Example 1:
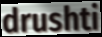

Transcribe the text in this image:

drushti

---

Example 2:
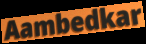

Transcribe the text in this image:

Aambedkar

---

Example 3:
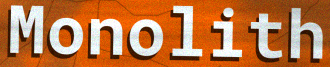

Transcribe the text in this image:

Monolith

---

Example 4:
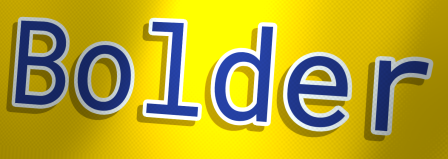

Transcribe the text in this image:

Bolder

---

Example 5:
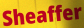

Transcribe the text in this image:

Sheaffer